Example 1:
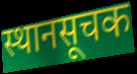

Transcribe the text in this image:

स्थानसूचक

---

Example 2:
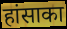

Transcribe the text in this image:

हांसाका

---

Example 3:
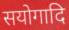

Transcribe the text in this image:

सयोगादि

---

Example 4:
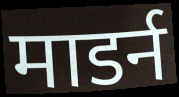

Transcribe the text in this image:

माडर्न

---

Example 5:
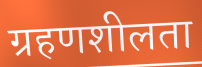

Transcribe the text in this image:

ग्रहणशीलता